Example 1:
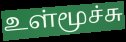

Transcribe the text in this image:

உள்மூச்சு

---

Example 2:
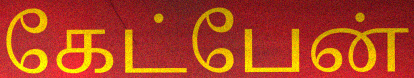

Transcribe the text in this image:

கேட்பேன்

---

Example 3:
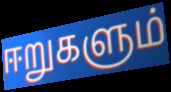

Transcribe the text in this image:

ஈறுகளும்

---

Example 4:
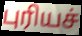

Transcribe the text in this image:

புரியச்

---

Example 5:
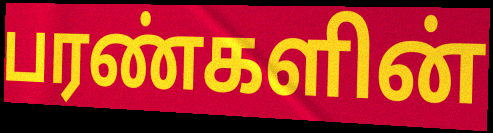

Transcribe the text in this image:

பரண்களின்